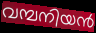
വമ്പനിയൻ